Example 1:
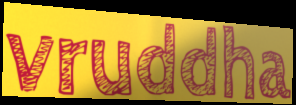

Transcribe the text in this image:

vruddha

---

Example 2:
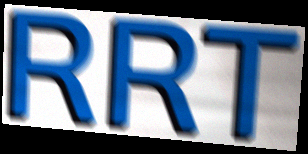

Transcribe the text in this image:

RRT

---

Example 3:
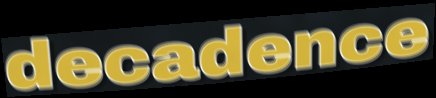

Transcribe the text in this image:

decadence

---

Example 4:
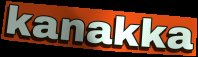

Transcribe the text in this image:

kanakka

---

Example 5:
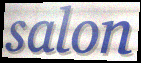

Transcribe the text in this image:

salon